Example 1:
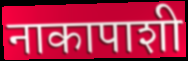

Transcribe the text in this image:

नाकापाशी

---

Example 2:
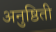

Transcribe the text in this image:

अनुष्ठिती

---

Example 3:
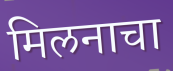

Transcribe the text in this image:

मिलनाचा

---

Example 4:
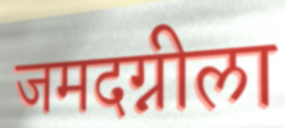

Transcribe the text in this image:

जमदग्नीला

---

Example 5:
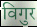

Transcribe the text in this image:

विगुर